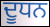
ਦੂਧਨ